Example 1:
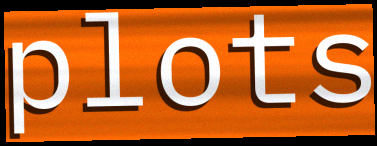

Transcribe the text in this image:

plots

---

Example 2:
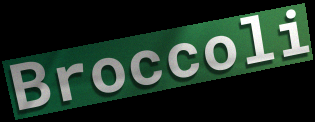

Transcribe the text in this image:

Broccoli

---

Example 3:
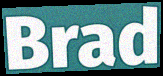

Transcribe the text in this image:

Brad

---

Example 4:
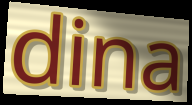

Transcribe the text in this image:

dina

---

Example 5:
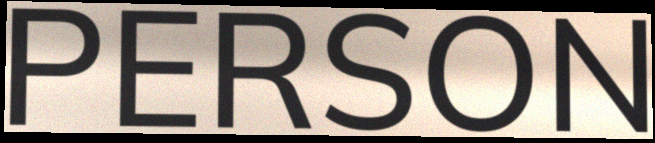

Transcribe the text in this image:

PERSON